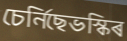
চেৰ্নিছেভস্কিৰ